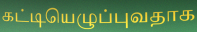
கட்டியெழுப்புவதாக